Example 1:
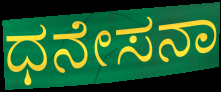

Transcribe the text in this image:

ಧನೇಸನಾ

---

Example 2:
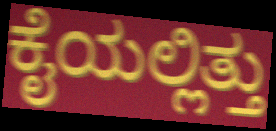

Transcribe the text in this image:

ಕೈಯಲ್ಲಿತ್ತು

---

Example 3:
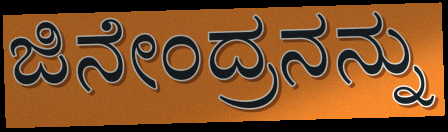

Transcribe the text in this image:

ಜಿನೇಂದ್ರನನ್ನು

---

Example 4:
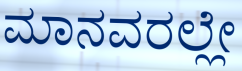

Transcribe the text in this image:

ಮಾನವರಲ್ಲೇ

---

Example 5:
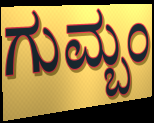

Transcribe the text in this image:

ಗುಮ್ಬಂ